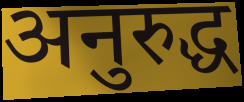
अनुरुद्ध